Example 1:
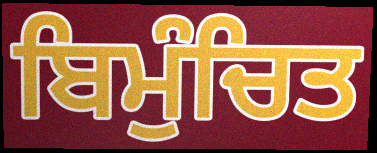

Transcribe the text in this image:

ਬਿਮੁੰਚਿਤ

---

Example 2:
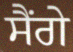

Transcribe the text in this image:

ਸੈਂਗੇ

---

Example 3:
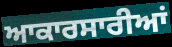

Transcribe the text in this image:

ਆਕਾਰਸਾਰੀਆਂ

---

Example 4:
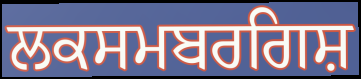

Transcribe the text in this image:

ਲਕਸਮਬਰਗਿਸ਼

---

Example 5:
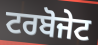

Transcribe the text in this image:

ਟਰਬੋਜੇਟ